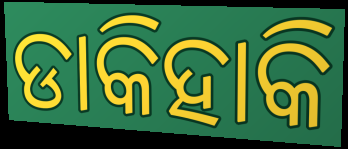
ଡାକିହାକି